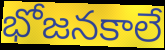
భోజనకాలే